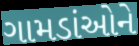
ગામડાંઓને